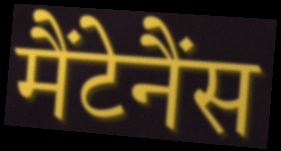
मैंटेनैंस